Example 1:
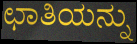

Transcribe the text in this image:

ಛಾತಿಯನ್ನು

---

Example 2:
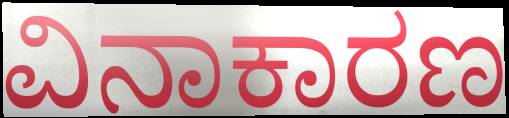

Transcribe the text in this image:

ವಿನಾಕಾರಣ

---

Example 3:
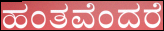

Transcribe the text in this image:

ಹಂತವೆಂದರೆ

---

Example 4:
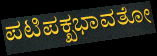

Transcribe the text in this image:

ಪಟಿಪಕ್ಖಭಾವತೋ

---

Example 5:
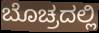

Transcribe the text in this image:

ಬೊಚ್ರದಲ್ಲಿ